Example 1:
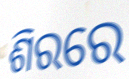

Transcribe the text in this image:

ଶିରରେ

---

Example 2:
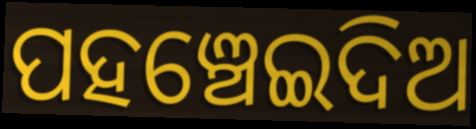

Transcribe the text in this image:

ପହଞ୍ଚେଇଦିଅ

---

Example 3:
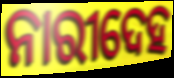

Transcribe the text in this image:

ନାରୀଦେହ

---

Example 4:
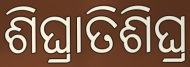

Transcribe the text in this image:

ଶିଘ୍ରାତିଶିଘ୍ର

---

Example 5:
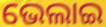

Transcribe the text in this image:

ଭେଲାଇ